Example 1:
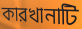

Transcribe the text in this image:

কারখানাটি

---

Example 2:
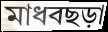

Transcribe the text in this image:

মাধবছড়া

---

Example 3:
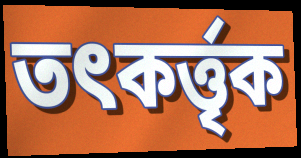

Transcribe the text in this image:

তৎকর্ত্তৃক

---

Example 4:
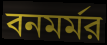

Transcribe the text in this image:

বনমর্মর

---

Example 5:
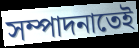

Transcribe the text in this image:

সম্পাদনাতেই